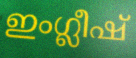
ഇംഗ്ലീഷ്